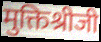
मुक्तिश्रीजी